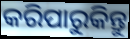
କରିପାରୁକିନ୍ତୁ